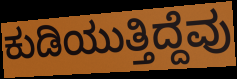
ಕುಡಿಯುತ್ತಿದ್ದೆವು